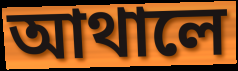
আথালে